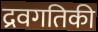
द्रवगतिकी